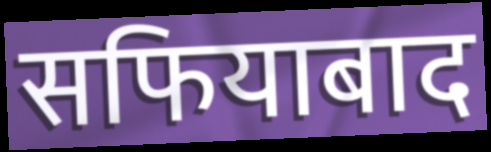
सफियाबाद